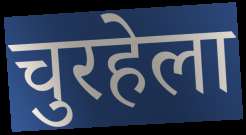
चुरहेला